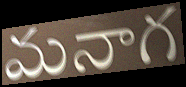
మనాగ